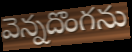
వెన్నదొంగను